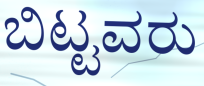
ಬಿಟ್ಟವರು